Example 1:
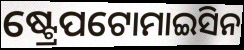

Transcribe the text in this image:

ଷ୍ଟ୍ରେପଟୋମାଇସିନ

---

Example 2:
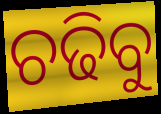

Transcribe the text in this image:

ଚଢିବୁ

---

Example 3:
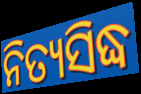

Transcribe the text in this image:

ନିତ୍ୟସିଦ୍ଧ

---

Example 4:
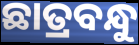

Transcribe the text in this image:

ଛାତ୍ରବନ୍ଧୁ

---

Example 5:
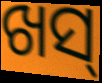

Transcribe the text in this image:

ଖସ୍